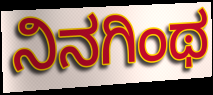
ನಿನಗಿಂಥ